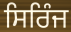
ਸਿਰਿੰਜ